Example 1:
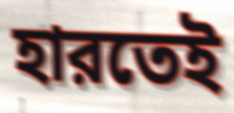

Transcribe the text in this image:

হারতেই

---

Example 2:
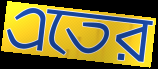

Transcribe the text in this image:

এতের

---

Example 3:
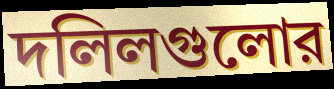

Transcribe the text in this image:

দলিলগুলোর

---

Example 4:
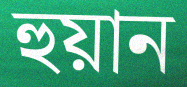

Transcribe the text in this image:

হুয়ান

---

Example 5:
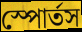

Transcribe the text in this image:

স্পোর্তস